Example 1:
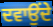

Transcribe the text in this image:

ਦਵਾਉਂਦੇ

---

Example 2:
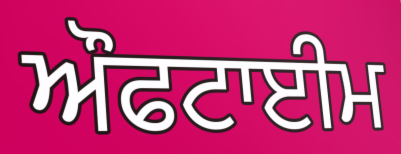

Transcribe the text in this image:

ਔਫਟਾਈਮ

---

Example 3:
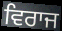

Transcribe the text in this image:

ਵਿਰਾਜ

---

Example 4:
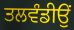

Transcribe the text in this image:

ਤਲਵੰਡੀਉਂ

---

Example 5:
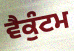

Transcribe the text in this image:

ਵੈਕੁੰਟਮ